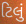
ટિલું